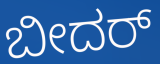
ಬೀದರ್